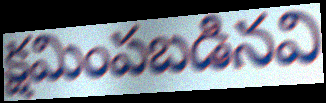
క్షమింపబడినవి